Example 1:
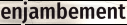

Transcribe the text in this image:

enjambement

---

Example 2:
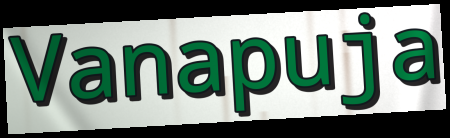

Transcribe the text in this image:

Vanapuja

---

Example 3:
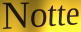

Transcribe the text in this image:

Notte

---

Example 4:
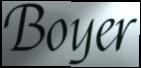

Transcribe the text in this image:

Boyer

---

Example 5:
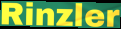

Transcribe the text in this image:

Rinzler